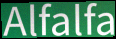
Alfalfa